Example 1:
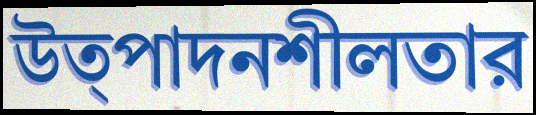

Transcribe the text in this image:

উত্পাদনশীলতার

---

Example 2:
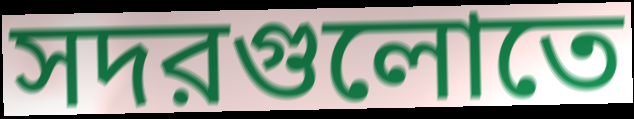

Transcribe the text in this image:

সদরগুলোতে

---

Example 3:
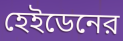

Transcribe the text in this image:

হেইডেনের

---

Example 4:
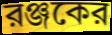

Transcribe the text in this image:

রঞ্জকের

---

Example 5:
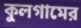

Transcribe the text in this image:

কুলগামের